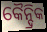
କୈନ୍ଦ୍ରିକ